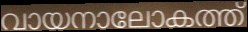
വായനാലോകത്ത്